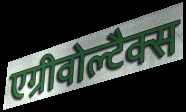
एग्रीवोल्टैक्स